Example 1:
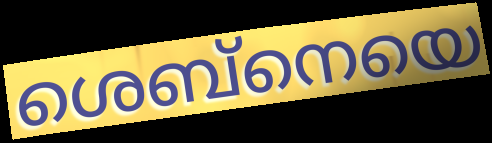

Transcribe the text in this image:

ശെബ്നെയെ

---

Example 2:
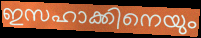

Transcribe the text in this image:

ഇസഹാക്കിനെയും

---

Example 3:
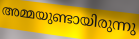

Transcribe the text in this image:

അമ്മയുണ്ടായിരുന്നു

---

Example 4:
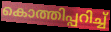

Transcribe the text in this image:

കൊത്തിപ്പറിച്ച്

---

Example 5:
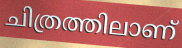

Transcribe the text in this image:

ചിത്രത്തിലാണ്